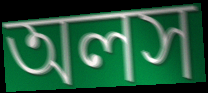
অলস